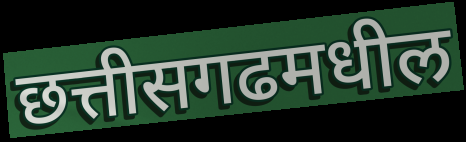
छत्तीसगढमधील